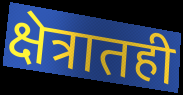
क्षेत्रातही